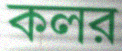
কলর